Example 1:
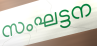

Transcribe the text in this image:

സംഘട്ടന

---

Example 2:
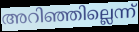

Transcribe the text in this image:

അറിഞ്ഞില്ലെന്ന്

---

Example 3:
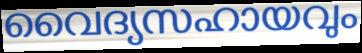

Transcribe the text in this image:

വൈദ്യസഹായവും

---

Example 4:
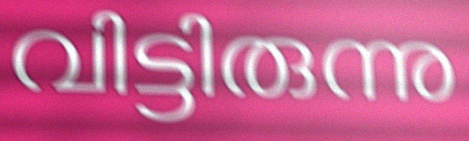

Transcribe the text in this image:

വിട്ടിരുന്നു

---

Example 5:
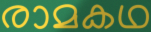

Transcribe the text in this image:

രാമകഥ